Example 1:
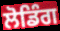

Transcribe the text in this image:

ਲੋਡਿੰਗ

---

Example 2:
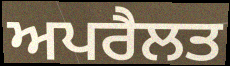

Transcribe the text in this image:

ਅਪਰੈਲਤ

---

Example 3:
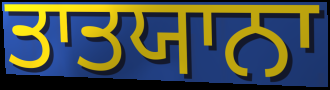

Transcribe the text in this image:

ਤਾਤਯਾਨਾ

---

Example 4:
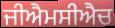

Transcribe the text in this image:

ਜੀਐਮਸੀਐਚ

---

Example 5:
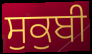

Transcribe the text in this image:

ਸੁਕੁਬੀ